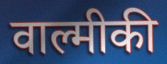
वाल्मीकी